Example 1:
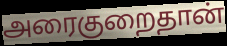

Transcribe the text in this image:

அரைகுறைதான்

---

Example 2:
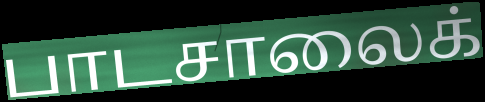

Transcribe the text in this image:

பாடசாலைக்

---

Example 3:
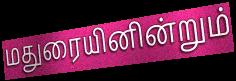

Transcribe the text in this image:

மதுரையினின்றும்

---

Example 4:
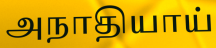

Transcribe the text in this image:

அநாதியாய்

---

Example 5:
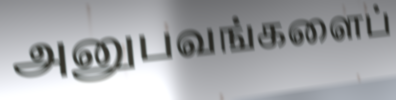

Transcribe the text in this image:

அனுபவங்களைப்